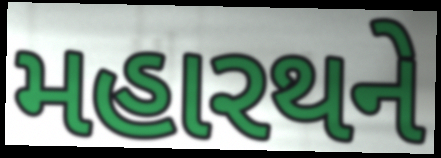
મહારથને